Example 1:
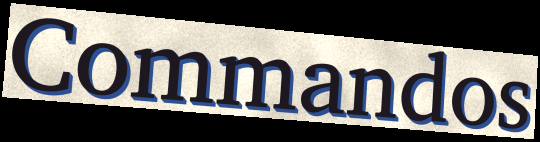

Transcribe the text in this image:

Commandos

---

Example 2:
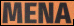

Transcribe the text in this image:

MENA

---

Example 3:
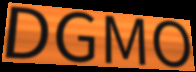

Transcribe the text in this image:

DGMO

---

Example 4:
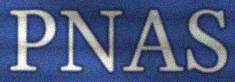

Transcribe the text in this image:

PNAS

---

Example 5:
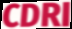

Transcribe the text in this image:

CDRI